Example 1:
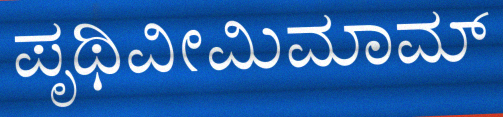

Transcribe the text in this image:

ಪೃಥಿವೀಮಿಮಾಮ್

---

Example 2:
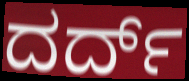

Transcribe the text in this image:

ದರ್ದ್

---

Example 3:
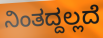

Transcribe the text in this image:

ನಿಂತದ್ದಲ್ಲದೆ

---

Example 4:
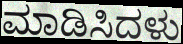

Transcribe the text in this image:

ಮಾಡಿಸಿದಳು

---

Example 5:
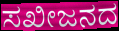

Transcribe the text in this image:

ಸಖೀಜನದ